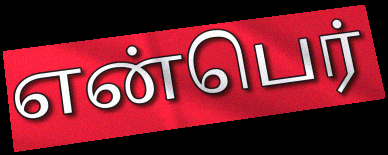
என்பெர்